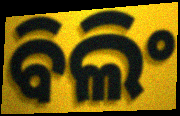
ବିଲିଂ